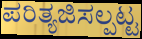
ಪರಿತ್ಯಜಿಸಲ್ಪಟ್ಟ